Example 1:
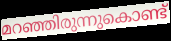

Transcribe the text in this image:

മറഞ്ഞിരുന്നുകൊണ്ട്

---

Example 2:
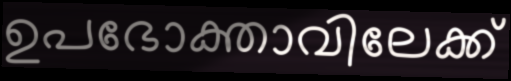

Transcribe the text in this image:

ഉപഭോക്താവിലേക്ക്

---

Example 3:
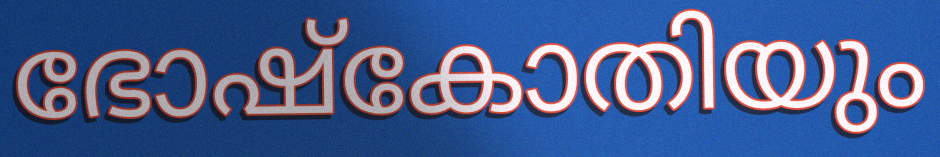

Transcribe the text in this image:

ഭോഷ്കോതിയും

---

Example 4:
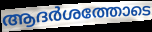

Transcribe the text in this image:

ആദർശത്തോടെ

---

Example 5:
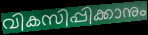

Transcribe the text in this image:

വികസിപ്പിക്കാനും